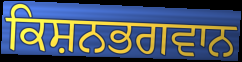
ਕਿਸ਼ਨਭਗਵਾਨ